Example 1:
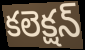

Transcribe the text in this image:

కలెక్షన్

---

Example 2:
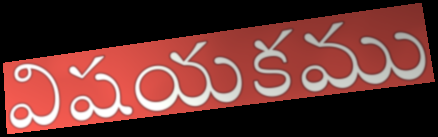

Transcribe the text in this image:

విషయకము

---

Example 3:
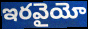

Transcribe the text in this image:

ఇరవైయో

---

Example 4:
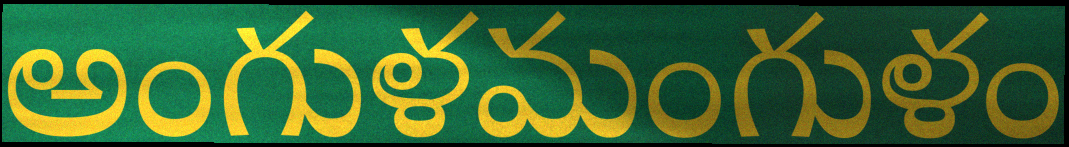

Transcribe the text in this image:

అంగుళమంగుళం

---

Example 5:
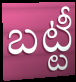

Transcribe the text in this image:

బట్టీ